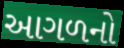
આગળનો